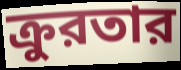
ক্রুরতার